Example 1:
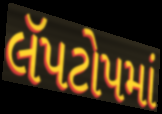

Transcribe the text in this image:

લૅપટોપમાં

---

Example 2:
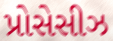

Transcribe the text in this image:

પ્રોસેસીઝ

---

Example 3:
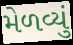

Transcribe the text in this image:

મેળવ્યું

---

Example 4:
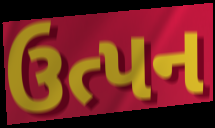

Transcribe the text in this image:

ઉત્પન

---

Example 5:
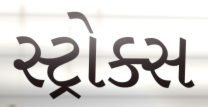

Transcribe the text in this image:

સ્ટ્રોક્સ